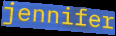
jennifer